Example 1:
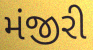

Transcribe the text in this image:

મંજીરી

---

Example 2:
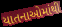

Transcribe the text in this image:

યાતનાઓમાંથી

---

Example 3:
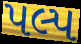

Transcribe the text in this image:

પલ્પ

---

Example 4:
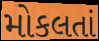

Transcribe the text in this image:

મોકલતાં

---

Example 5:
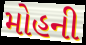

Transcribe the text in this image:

મોહની